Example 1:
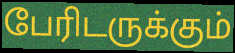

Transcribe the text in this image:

பேரிடருக்கும்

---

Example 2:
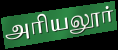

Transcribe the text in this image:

அரியலூர்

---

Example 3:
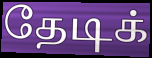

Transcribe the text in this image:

தேடிக்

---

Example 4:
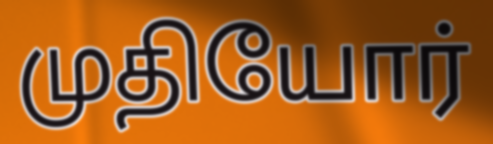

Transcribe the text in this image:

முதியோர்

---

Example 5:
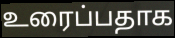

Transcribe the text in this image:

உரைப்பதாக